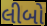
લીબો